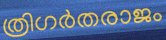
ത്രിഗർതരാജം